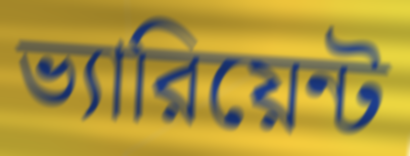
ভ্যারিয়েন্ট